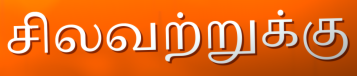
சிலவற்றுக்கு